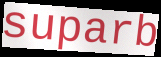
suparb